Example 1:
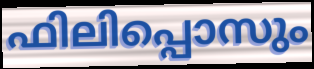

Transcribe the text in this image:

ഫിലിപ്പൊസും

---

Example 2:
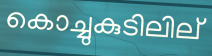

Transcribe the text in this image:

കൊച്ചുകുടിലില്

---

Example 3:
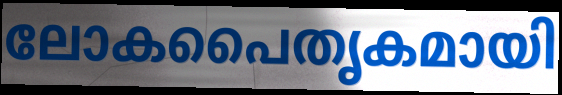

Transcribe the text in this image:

ലോകപൈതൃകമായി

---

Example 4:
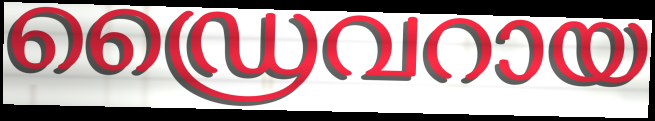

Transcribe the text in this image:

ഡ്രൈവറായ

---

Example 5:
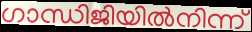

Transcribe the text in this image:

ഗാന്ധിജിയിൽനിന്ന്